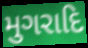
મુગરાદિ